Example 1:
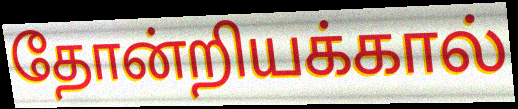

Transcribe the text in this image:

தோன்றியக்கால்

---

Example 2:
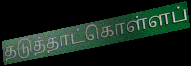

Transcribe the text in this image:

தடுத்தாட்கொள்ளப்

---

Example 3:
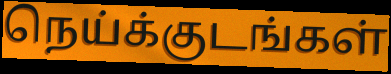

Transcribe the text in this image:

நெய்க்குடங்கள்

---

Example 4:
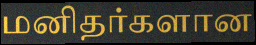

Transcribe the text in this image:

மனிதர்களான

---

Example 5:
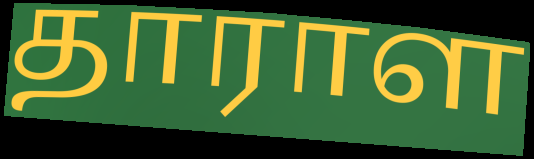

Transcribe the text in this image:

தாராள